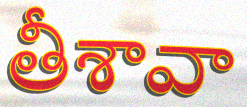
తీశావా